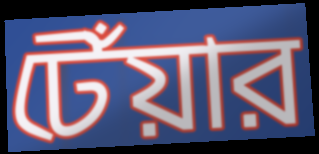
টেঁয়ার